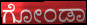
ಗೋಂಡಾ